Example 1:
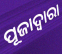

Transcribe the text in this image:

ପୂଜାଦ୍ୱାରା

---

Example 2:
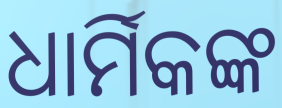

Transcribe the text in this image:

ଧାର୍ମିକଙ୍କ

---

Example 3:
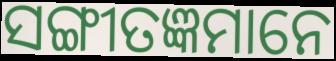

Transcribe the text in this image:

ସଙ୍ଗୀତଜ୍ଞମାନେ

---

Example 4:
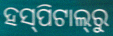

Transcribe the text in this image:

ହସ୍‌ପିଟାଲ୍‌ରୁ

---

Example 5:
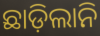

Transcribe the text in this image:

ଛାଡ଼ିଲାନି